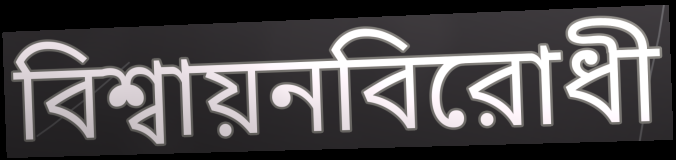
বিশ্বায়নবিরোধী